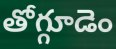
తోగ్గూడెం